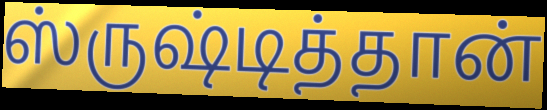
ஸ்ருஷ்டித்தான்